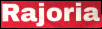
Rajoria